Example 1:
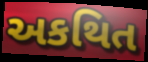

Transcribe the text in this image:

અકથિત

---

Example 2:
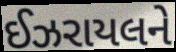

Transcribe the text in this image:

ઈઝરાયલને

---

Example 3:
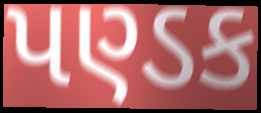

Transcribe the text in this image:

પણ્ડક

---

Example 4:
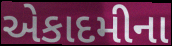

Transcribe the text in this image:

એકાદમીના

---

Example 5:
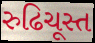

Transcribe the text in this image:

રુઢિચૂસ્ત